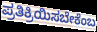
ಪ್ರತಿಕ್ರಿಯಿಸಬೇಕೆಂಬ